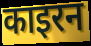
काइरन